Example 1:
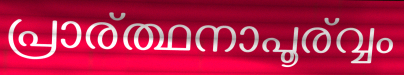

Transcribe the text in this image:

പ്രാര്ത്ഥനാപൂര്വ്വം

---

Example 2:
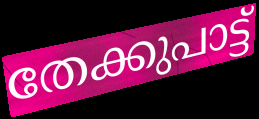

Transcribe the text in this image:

തേക്കുപാട്ട്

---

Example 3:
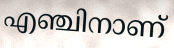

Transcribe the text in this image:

എഞ്ചിനാണ്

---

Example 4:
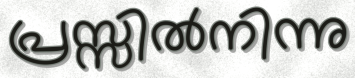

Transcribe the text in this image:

പ്രസ്സിൽനിന്നു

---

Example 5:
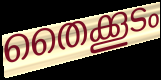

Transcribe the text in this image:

തൈക്കൂടം